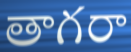
తాగరా